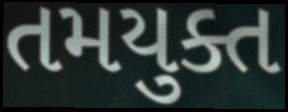
તમયુક્ત